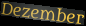
Dezember